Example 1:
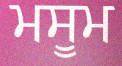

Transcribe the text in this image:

ਮਸੂਮ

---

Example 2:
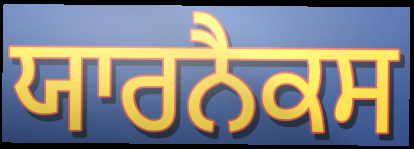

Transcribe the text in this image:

ਯਾਰਨੈਕਸ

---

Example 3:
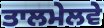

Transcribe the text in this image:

ਤਾਲਮੇਲਵੇ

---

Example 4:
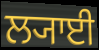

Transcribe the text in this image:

ਲ੍ਯਾਈ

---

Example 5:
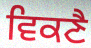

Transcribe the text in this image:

ਵਿਕਣੈ